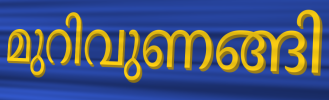
മുറിവുണങ്ങി